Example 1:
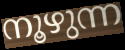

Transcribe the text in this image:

നൂഴുന്ന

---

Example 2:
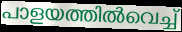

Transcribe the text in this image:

പാളയത്തിൽവെച്ച്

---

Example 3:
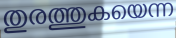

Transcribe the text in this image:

തുരത്തുകയെന്ന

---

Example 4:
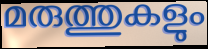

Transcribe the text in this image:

മരുത്തുകളും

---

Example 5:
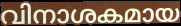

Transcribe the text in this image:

വിനാശകമായ